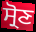
ਸ੍ਰੋਣ